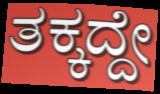
ತಕ್ಕದ್ದೇ